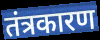
तंत्रकारण